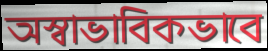
অস্বাভাবিকভাবে